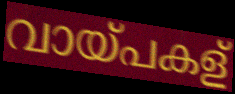
വായ്പകള്